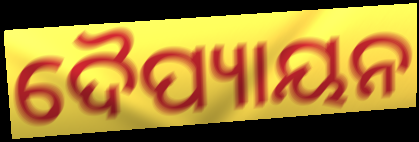
ଦୈପ୍ୟାୟନ